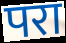
परा